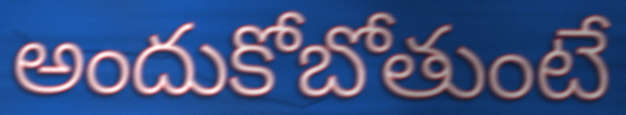
అందుకోబోతుంటే